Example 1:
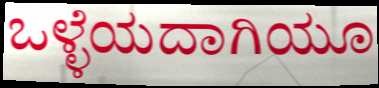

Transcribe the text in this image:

ಒಳ್ಳೆಯದಾಗಿಯೂ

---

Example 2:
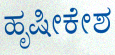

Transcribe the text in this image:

ಹೃಷೀಕೇಶ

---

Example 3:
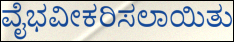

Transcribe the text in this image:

ವೈಭವೀಕರಿಸಲಾಯಿತು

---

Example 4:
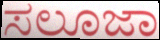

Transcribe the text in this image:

ಸಲೂಜಾ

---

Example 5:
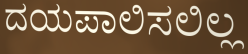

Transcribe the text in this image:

ದಯಪಾಲಿಸಲಿಲ್ಲ